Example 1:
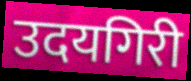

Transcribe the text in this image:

उदयगिरी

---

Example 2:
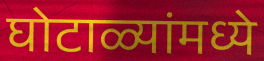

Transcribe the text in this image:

घोटाळ्यांमध्ये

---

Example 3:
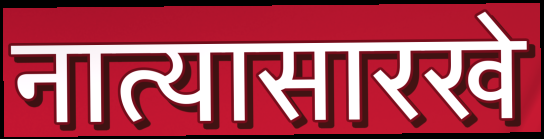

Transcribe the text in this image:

नात्यासारखे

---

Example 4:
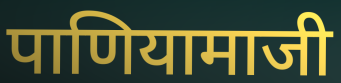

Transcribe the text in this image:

पाणियामाजी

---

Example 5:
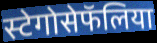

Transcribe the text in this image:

स्टेगोसेफॅलिया